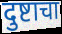
दुष्टाचा